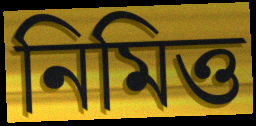
নিমিত্ত